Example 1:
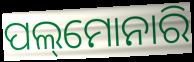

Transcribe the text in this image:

ପଲ୍‌ମୋନାରି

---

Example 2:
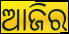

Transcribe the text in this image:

ଆଜିର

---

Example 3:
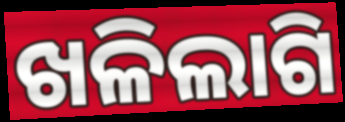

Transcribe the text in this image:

ଖଳିଲାଗି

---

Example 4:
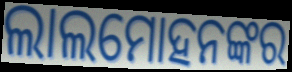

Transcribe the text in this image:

ଲାଲମୋହନଙ୍କର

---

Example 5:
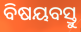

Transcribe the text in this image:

ବିଷୟବସ୍ତୁ